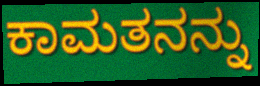
ಕಾಮತನನ್ನು